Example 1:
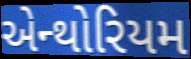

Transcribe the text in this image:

એન્થોરિયમ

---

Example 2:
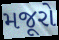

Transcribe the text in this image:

મજૂરો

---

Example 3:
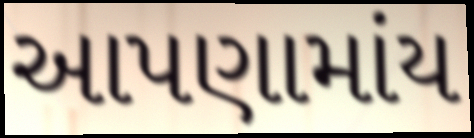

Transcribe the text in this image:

આપણામાંય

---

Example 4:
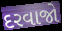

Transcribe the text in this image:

દરવાજો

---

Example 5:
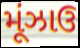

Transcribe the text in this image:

મૂંઝાઉ